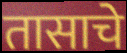
तासाचे